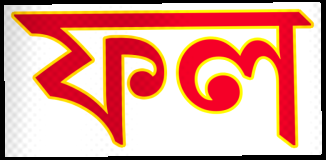
ফল